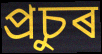
প্ৰচুৰ